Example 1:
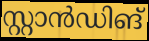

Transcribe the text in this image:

സ്റ്റാൻഡിങ്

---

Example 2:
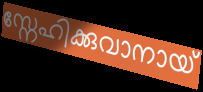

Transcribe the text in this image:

സ്നേഹിക്കുവാനായ്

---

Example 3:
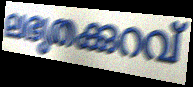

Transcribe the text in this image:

ലഭ്യതക്കുറവ്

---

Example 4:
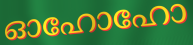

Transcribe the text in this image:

ഓഹോഹോ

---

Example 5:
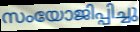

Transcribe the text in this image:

സംയോജിപ്പിച്ചു